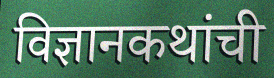
विज्ञानकथांची